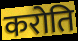
करोति